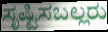
ಸೃಷ್ಟಿಸಬಲ್ಲರು